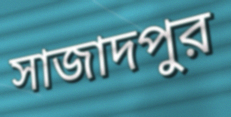
সাজাদপুর